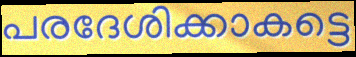
പരദേശിക്കാകട്ടെ